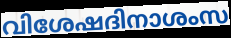
വിശേഷദിനാശംസ